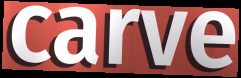
carve